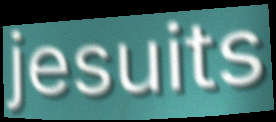
jesuits